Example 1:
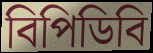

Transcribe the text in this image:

বিপিডিবি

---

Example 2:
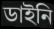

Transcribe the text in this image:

ডাইনি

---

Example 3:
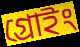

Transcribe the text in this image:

গ্রোইং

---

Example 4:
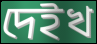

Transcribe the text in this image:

দেইখ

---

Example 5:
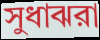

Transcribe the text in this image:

সুধাঝরা